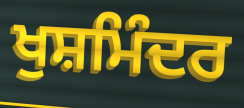
ਖੁਸ਼ਮਿੰਦਰ